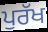
ਪੁਰੱਖ